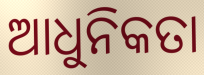
ଆଧୁନିକତା